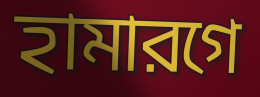
হামারগে